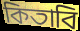
কিতাবি